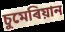
চুমেৰিয়ান